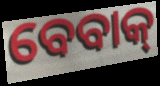
ବେବାକ୍